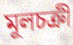
মূলচক্রী